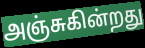
அஞ்சுகின்றது